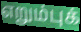
எறும்புக்